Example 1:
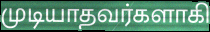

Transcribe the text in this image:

முடியாதவர்களாகி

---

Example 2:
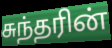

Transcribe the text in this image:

சுந்தரின்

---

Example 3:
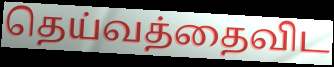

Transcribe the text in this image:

தெய்வத்தைவிட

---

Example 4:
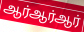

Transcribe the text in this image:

ஆர்ஆர்ஆர்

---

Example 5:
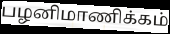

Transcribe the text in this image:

பழனிமாணிக்கம்